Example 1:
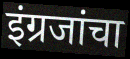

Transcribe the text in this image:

इंग्रजांचा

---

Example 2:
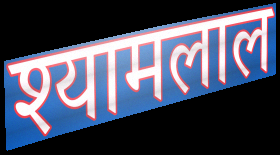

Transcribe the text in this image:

श्यामलाल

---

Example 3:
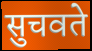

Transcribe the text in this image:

सुचवते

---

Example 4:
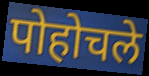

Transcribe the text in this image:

पोहोचले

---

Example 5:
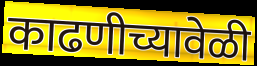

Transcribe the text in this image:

काढणीच्यावेळी